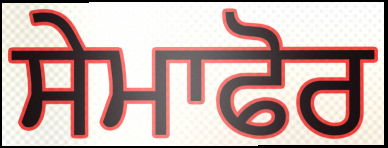
ਸੇਮਾਫੋਰ